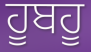
ਹੂਬਹੂ